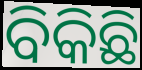
ବିକିଛି